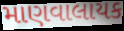
માણવાલાયક